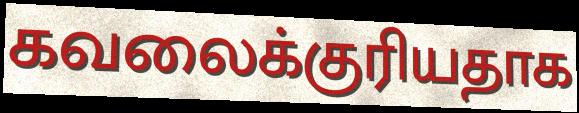
கவலைக்குரியதாக